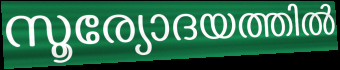
സൂര്യോദയത്തിൽ